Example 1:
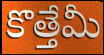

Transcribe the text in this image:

కొత్తేమీ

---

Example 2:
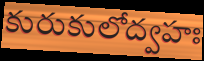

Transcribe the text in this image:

కురుకులోద్వహః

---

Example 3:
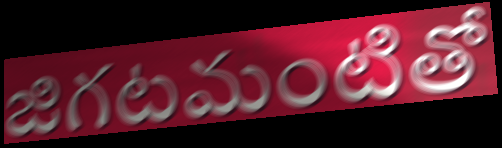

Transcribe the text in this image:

జిగటమంటితో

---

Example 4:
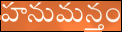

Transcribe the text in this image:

హనుమన్తం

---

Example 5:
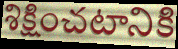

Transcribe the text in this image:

శిక్షించటానికి